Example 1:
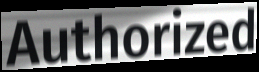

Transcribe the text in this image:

Authorized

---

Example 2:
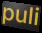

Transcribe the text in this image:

puli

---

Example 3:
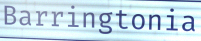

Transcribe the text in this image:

Barringtonia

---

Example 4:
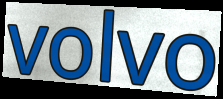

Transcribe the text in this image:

volvo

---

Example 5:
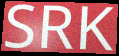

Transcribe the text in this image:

SRK